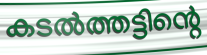
കടൽത്തട്ടിന്റെ